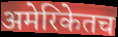
अमेरिकेतच